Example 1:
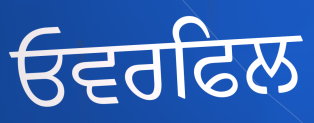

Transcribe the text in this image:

ਓਵਰਫਿਲ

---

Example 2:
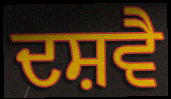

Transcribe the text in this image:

ਦਸ਼ਵੈ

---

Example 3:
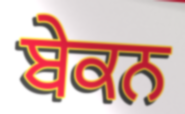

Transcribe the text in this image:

ਬੇਕਨ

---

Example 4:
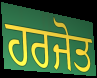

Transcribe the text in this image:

ਹਰਜੋਤ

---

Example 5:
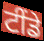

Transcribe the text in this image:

ਟੀਂਡੇ